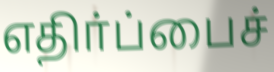
எதிர்ப்பைச்